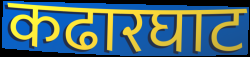
कढारघाट